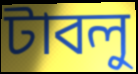
টাবলু